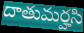
దాతుమర్హసి